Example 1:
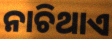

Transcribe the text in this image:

ନାଚିଥାଏ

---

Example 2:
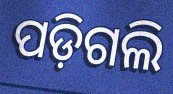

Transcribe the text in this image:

ପଡ଼ିଗଲି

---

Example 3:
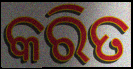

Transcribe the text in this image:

କରିତ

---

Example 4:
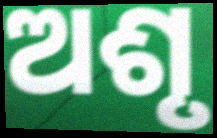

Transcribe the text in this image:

ଅଶୃ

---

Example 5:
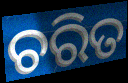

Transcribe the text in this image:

ଚରିତ